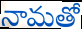
నామతో